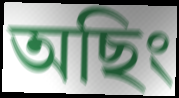
অছিং